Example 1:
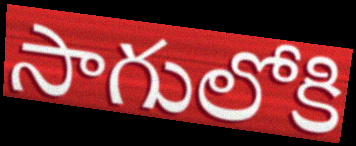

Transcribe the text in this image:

సాగులోకి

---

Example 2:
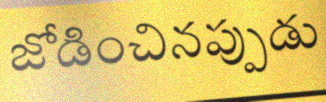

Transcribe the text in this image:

జోడించినప్పుడు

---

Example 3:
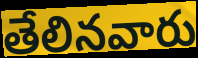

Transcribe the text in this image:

తేలినవారు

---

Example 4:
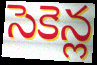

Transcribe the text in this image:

సెకెన్ల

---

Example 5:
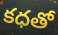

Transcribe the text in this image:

కధతో